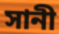
সানী